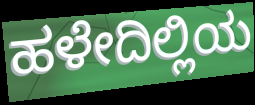
ಹಳೇದಿಲ್ಲಿಯ